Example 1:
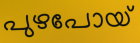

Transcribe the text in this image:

പുഴപോയ്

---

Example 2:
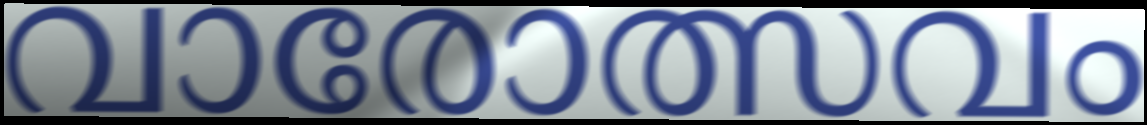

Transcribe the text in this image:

വാരോത്സവം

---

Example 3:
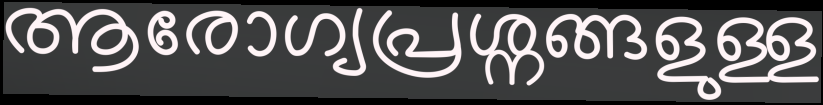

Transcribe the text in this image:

ആരോഗ്യപ്രശ്നങ്ങളുള്ള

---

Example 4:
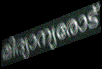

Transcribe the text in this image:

മിദ്യാന്യരോട്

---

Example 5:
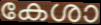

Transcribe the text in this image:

കേശാ